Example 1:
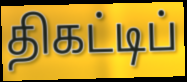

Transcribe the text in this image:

திகட்டிப்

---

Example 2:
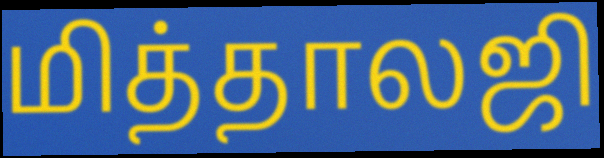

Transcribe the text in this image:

மித்தாலஜி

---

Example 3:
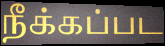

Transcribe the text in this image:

நீக்கப்பட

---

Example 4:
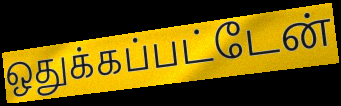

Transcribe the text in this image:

ஒதுக்கப்பட்டேன்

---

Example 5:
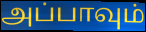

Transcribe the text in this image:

அப்பாவும்